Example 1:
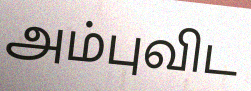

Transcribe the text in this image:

அம்புவிட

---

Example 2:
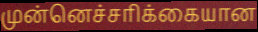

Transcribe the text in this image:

முன்னெச்சரிக்கையான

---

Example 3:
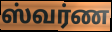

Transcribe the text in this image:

ஸ்வர்ண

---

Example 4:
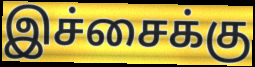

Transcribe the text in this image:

இச்சைக்கு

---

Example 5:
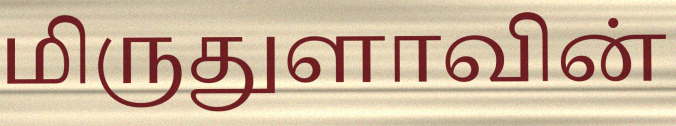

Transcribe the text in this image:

மிருதுளாவின்